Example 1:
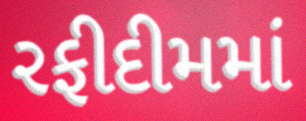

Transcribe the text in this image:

રફીદીમમાં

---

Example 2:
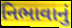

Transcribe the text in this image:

નિભાવાનું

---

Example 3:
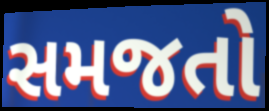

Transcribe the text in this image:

સમજતો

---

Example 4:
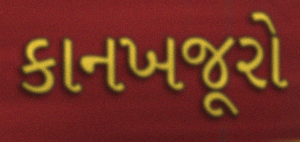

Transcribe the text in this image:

કાનખજૂરો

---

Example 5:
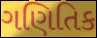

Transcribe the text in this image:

ગણિતિક